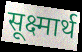
सूक्ष्मार्थ